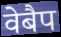
वेबैप